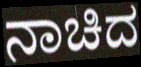
ನಾಚಿದ